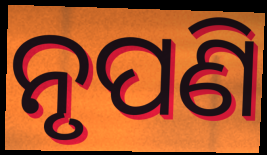
ନୃପଣି